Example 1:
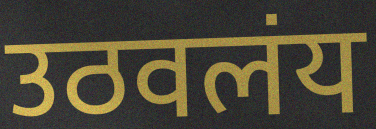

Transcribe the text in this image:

उठवलंय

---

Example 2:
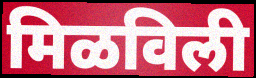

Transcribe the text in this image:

मिळविली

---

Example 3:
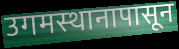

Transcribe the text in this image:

उगमस्थानापासून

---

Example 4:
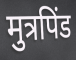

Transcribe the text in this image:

मुत्रपिंड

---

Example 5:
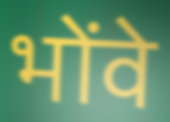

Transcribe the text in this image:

भोंवे